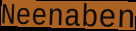
Neenaben